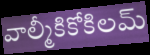
వాల్మీకికోకిలమ్